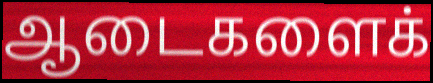
ஆடைகளைக்